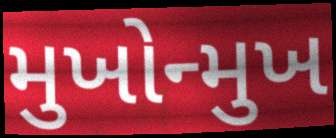
મુખોન્મુખ